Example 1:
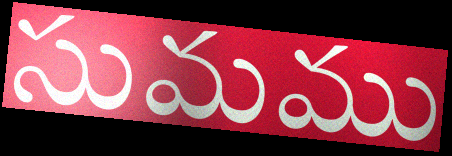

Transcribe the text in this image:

సుమము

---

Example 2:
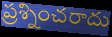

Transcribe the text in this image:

ప్రశ్నించరాదు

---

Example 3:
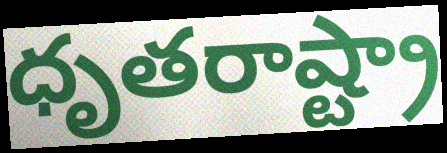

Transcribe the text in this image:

ధృతరాష్ట్రా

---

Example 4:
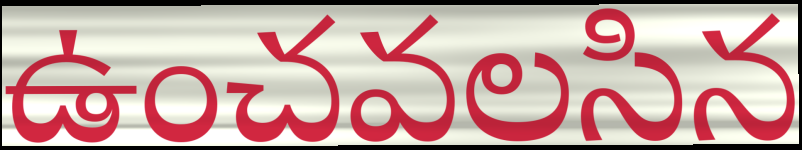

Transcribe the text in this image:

ఉంచవలసిన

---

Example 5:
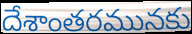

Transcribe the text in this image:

దేశాంతరమునకు